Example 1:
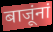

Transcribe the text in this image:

बाजूंनां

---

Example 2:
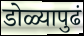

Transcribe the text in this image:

डोळ्यापुढं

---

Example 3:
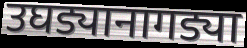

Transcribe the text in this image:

उघड्यानागड्या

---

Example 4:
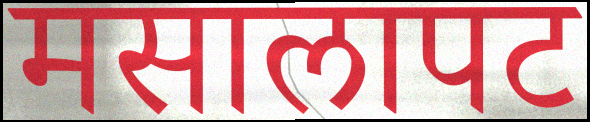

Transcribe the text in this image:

मसालापट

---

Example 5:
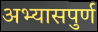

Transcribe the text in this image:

अभ्यासपुर्ण